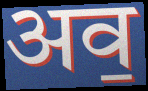
अव॒